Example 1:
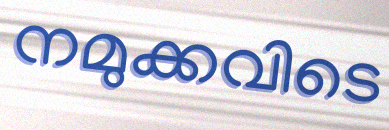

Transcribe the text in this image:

നമുക്കവിടെ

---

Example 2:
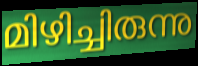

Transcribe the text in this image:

മിഴിച്ചിരുന്നു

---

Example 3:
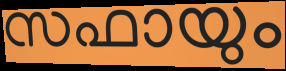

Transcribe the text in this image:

സഫായും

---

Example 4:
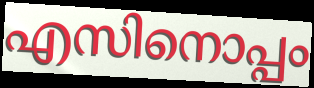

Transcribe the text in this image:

എസിനൊപ്പം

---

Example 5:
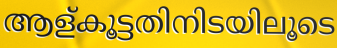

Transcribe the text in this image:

ആള്കൂട്ടതിനിടയിലൂടെ